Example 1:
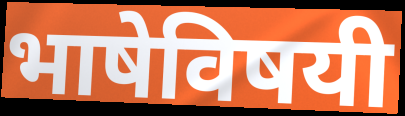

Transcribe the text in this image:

भाषेविषयी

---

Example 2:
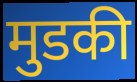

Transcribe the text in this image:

मुडकी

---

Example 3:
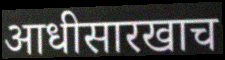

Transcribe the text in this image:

आधीसारखाच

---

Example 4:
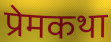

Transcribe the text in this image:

प्रेमकथा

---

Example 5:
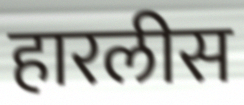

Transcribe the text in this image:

हारलीस